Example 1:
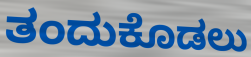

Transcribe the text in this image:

ತಂದುಕೊಡಲು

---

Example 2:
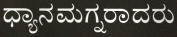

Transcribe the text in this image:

ಧ್ಯಾನಮಗ್ನರಾದರು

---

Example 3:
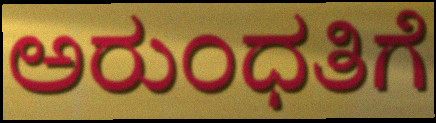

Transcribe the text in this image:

ಅರುಂಧತಿಗೆ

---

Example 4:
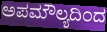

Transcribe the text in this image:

ಅಪಮೌಲ್ಯದಿಂದ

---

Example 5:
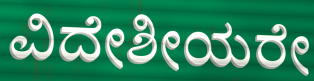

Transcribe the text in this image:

ವಿದೇಶೀಯರೇ